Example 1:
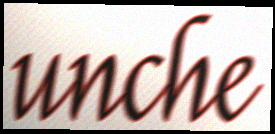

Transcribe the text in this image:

unche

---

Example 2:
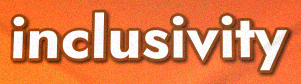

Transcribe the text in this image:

inclusivity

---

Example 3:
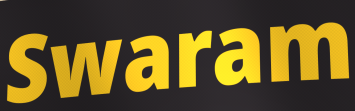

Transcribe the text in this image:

Swaram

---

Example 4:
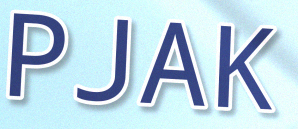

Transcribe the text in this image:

PJAK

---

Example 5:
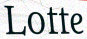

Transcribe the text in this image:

Lotte